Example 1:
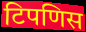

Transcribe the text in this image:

टिपणिस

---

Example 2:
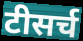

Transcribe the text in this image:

टीसर्च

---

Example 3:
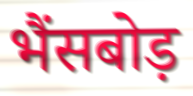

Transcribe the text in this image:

भैंसबोड़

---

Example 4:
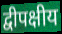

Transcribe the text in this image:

द्वीपक्षीय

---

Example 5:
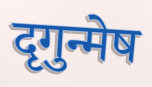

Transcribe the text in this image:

दृगुन्मेष